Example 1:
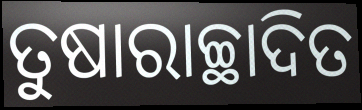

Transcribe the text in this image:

ତୁଷାରାଚ୍ଛାଦିତ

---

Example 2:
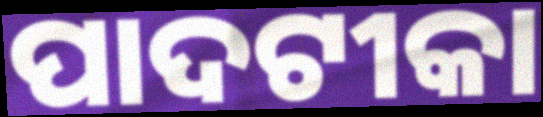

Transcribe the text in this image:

ପାଦଟୀକା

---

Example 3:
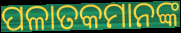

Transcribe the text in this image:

ପଳାତକମାନଙ୍କ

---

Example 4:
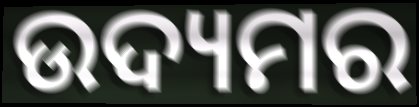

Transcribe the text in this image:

ଉଦ୍ୟମର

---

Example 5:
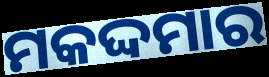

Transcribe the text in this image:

ମକଦ୍ଦମାର